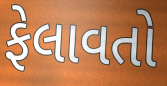
ફેલાવતો